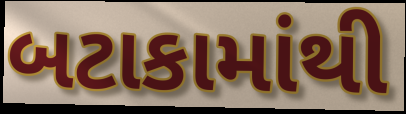
બટાકામાંથી